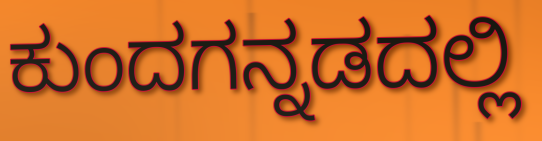
ಕುಂದಗನ್ನಡದಲ್ಲಿ